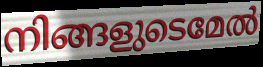
നിങ്ങളുടെമേൽ